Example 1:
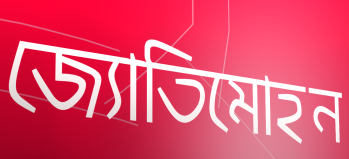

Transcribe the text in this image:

জ্যোতিমোহন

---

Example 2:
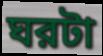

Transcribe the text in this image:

ঘরটা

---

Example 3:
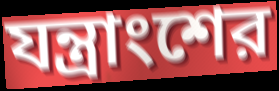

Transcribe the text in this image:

যন্ত্রাংশের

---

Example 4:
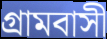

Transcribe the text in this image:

গ্রামবাসী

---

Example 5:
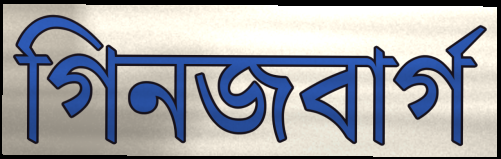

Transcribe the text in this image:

গিনজবার্গ